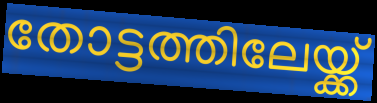
തോട്ടത്തിലേയ്ക്ക്